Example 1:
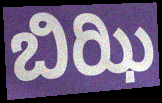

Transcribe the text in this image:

ಬಿಝಿ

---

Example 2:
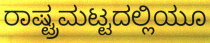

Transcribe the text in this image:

ರಾಷ್ಟ್ರಮಟ್ಟದಲ್ಲಿಯೂ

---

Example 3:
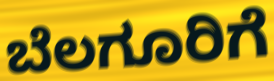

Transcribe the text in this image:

ಬೆಲಗೂರಿಗೆ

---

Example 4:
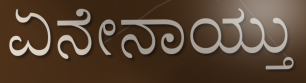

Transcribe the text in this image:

ಏನೇನಾಯ್ತು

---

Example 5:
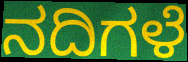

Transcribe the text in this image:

ನದಿಗಳೆ